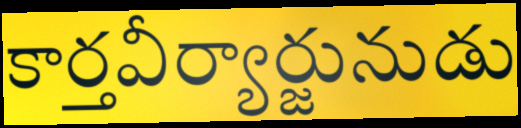
కార్తవీర్యార్జునుడు